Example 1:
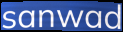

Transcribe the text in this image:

sanwad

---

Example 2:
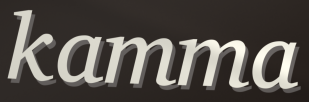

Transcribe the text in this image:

kamma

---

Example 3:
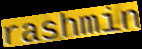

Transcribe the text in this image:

rashmin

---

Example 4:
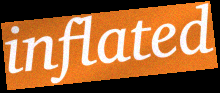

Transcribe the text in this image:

inflated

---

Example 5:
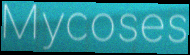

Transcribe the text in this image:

Mycoses